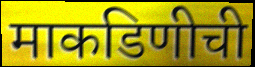
माकडिणीची